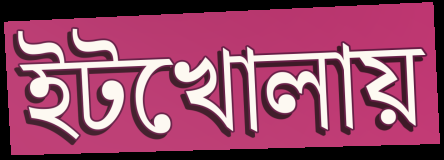
ইটখোলায়